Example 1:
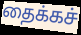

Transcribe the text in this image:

தைக்கச்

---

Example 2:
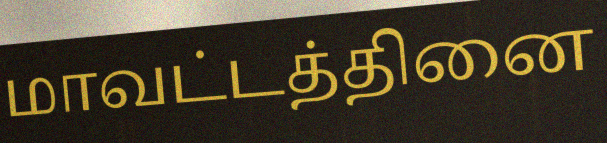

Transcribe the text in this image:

மாவட்டத்தினை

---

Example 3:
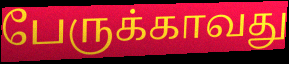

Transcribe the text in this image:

பேருக்காவது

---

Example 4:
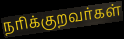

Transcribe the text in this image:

நரிக்குறவர்கள்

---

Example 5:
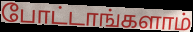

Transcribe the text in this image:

போட்டாங்களாம்